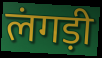
लंगड़ी